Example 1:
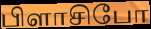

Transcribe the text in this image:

பிளாசிபோ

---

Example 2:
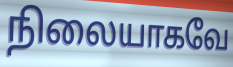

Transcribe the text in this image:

நிலையாகவே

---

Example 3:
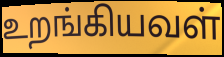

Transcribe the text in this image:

உறங்கியவள்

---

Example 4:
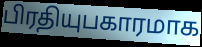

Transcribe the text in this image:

பிரதியுபகாரமாக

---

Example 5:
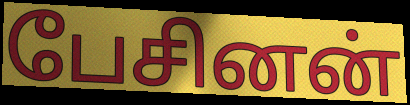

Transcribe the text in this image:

பேசினன்